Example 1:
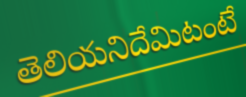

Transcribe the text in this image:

తెలియనిదేమిటంటే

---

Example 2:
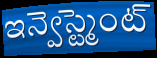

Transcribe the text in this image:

ఇన్వెస్ట్మెంట్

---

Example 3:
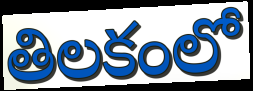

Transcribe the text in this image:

తిలకంలో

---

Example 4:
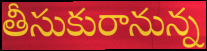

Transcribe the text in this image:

తీసుకురానున్న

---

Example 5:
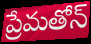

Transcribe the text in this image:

ప్రేమతోన్